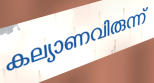
കല്യാണവിരുന്ന്